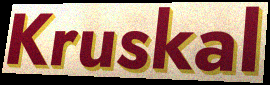
Kruskal